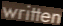
written